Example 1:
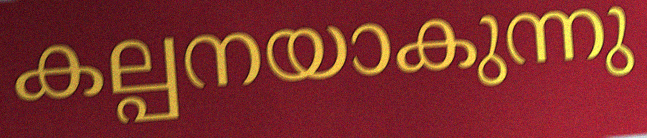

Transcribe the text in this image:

കല്പനയാകുന്നു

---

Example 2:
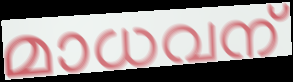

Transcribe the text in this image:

മാധവന്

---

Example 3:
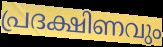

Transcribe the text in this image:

പ്രദക്ഷിണവും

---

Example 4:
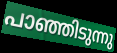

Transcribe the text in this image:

പാഞ്ഞിടുന്നു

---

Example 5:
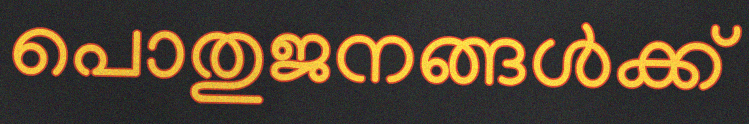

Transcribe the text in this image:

പൊതുജനങ്ങൾക്ക്